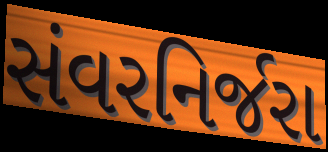
સંવરનિર્જરા